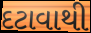
દટાવાથી